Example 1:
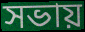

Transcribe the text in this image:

সভায়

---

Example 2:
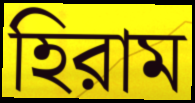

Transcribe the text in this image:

হিরাম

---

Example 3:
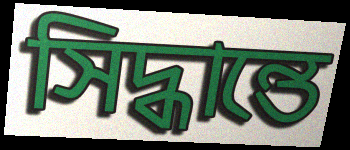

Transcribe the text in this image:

সিদ্ধান্তে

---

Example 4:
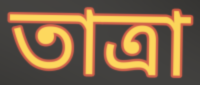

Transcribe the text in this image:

তাত্রা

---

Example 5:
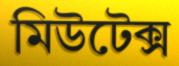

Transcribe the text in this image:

মিউটেক্স